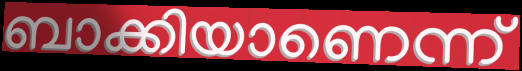
ബാക്കിയാണെന്ന്